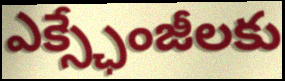
ఎక్స్ఛేంజీలకు